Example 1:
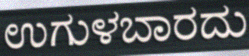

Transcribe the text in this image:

ಉಗುಳಬಾರದು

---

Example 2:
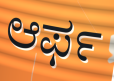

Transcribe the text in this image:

ಆರ್ಫ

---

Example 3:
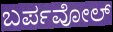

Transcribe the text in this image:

ಬರ್ಪವೋಲ್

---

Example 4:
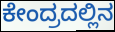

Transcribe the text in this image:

ಕೇಂದ್ರದಲ್ಲಿನ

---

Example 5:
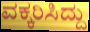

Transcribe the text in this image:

ವಕ್ಕರಿಸಿದ್ದು